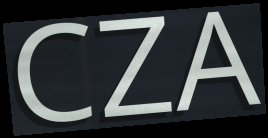
CZA